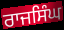
ਰਾਜਸਿੰਘ